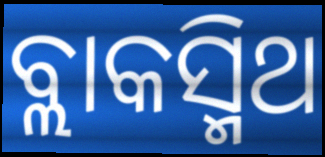
ବ୍ଲାକସ୍ମିଥ